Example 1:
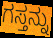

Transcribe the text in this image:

ಗಸ್ತನ್ನು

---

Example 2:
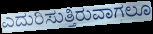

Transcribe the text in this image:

ಎದುರಿಸುತ್ತಿರುವಾಗಲೂ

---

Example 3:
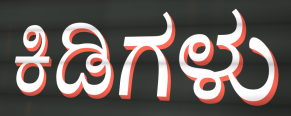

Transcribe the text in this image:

ಕಿಡಿಗಳು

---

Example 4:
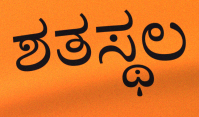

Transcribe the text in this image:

ಶತಸ್ಥಲ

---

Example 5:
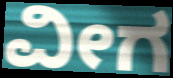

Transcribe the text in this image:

ವೀಗ